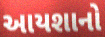
આયશાનો